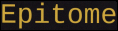
Epitome